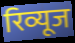
रिव्यूज